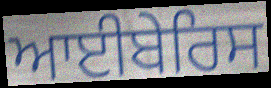
ਆਈਬੇਰਿਸ